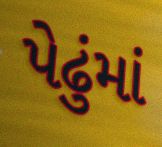
પેઢુંમાં